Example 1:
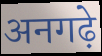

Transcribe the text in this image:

अनगढ़े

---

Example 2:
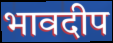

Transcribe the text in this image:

भावदीप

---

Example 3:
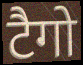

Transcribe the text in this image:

टैगो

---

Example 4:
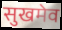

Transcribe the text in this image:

सुखमेव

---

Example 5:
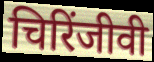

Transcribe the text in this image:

चिरिंजीवी